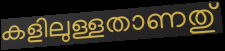
കളിലുള്ളതാണതു്